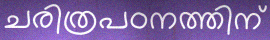
ചരിത്രപഠനത്തിന്